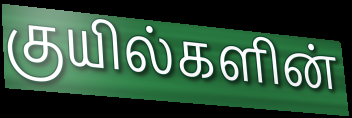
குயில்களின்